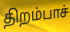
திறம்பாச்